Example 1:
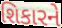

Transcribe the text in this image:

શિકારને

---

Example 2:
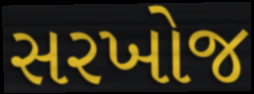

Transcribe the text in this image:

સરખોજ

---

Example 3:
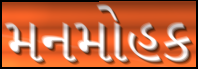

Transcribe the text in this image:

મનમોહક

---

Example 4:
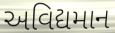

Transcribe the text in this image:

અવિદ્યમાન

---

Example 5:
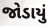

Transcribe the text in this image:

જોડાયું